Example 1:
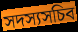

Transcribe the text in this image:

সদস্যসচিব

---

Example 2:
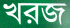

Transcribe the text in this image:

খরজ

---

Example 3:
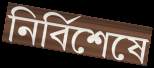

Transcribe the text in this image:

নির্বিশেষে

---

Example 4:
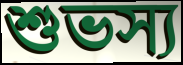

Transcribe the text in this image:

শুভস্য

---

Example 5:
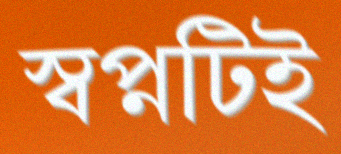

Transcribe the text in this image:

স্বপ্নটিই